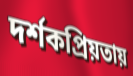
দর্শকপ্রিয়তায়